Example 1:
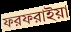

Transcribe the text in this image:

ফরফরাইয়া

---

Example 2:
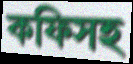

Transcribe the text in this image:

কফিসহ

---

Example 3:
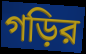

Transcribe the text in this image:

গড়ির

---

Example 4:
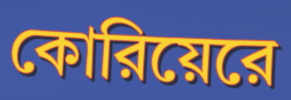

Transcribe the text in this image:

কোরিয়েরে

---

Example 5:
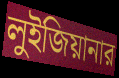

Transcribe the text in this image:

লুইজিয়ানার